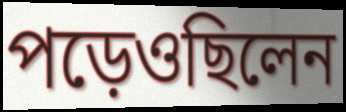
পড়েওছিলেন